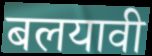
बलयावी